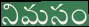
నిమసం